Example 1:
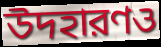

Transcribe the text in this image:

উদহারণও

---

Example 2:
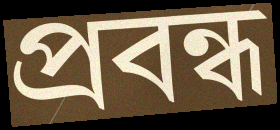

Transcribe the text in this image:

প্রবন্ধ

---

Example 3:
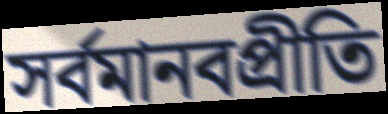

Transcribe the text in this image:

সর্বমানবপ্রীতি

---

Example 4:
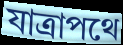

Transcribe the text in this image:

যাত্রাপথে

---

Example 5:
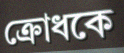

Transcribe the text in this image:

ক্রোধকে